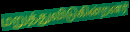
மறுத்துவிடுகின்றனர்